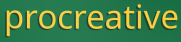
procreative